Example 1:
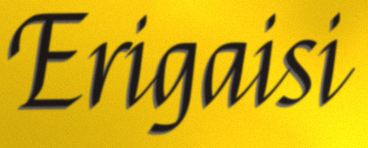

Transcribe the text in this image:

Erigaisi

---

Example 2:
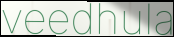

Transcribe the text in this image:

veedhula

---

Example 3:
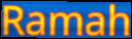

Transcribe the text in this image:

Ramah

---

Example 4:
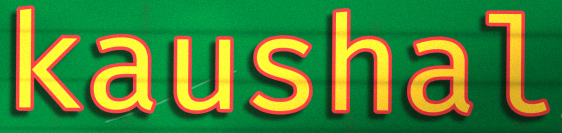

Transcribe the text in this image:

kaushal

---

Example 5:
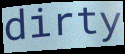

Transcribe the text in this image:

dirty